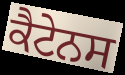
ਕੈਟੇਨਸ